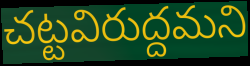
చట్టవిరుద్దమని